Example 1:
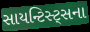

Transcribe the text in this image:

સાયન્ટિસ્ટ્સના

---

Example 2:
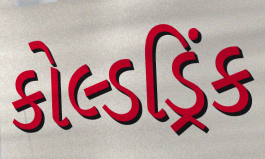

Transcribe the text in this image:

કોલ્ડડ્રિંક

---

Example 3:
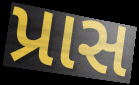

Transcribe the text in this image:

પ્રાસ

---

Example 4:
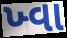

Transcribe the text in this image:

ખ્વા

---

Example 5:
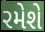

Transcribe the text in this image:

રમેશે